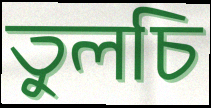
তুলচি